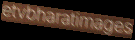
etvbharatimages